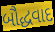
બૌદ્ધવાદ